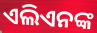
ଏଲିଏନଙ୍କ